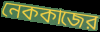
নেককাজের